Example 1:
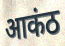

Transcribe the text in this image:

आकंठ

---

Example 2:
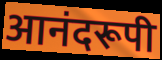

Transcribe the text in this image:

आनंदरूपी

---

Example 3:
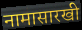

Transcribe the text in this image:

नामासारखी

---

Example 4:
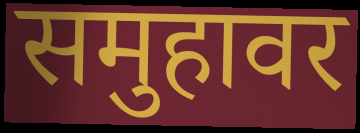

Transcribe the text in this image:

समुहावर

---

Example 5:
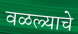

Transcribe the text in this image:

वळल्याचे